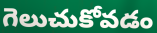
గెలుచుకోవడం